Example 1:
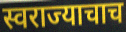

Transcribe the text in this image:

स्वराज्याचाच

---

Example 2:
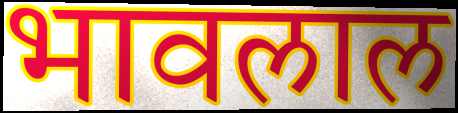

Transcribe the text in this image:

भावलाल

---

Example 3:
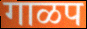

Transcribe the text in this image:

गाळप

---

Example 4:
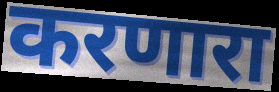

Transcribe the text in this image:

करणारा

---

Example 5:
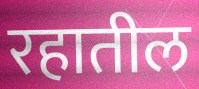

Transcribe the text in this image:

रहातील